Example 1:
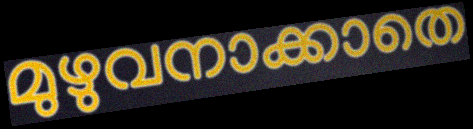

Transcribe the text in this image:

മുഴുവനാക്കാതെ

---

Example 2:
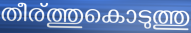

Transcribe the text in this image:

തീര്ത്തുകൊടുത്തു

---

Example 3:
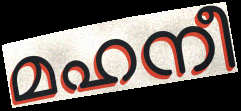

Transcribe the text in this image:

മഹനീ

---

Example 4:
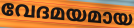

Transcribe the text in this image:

വേദമയമായ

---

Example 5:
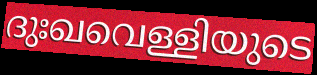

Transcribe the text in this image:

ദുഃഖവെള്ളിയുടെ